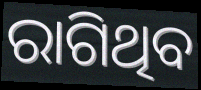
ରାଗିଥିବ